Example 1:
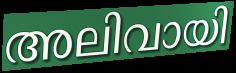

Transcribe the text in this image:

അലിവായി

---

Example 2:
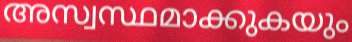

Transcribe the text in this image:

അസ്വസ്ഥമാക്കുകയും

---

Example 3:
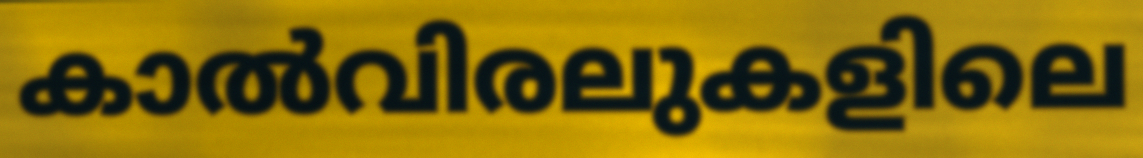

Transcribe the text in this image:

കാൽവിരലുകളിലെ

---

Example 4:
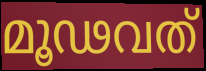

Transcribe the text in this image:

മൂഢവത്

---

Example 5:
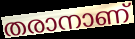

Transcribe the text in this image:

തരാനാണ്